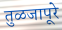
तुळजापूरे